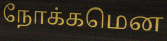
நோக்கமென